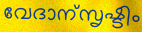
വേദാന്സൃഷ്ടിം